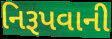
નિરૂપવાની